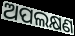
ଅପଲକ୍ଷଣ